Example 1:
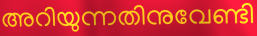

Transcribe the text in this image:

അറിയുന്നതിനുവേണ്ടി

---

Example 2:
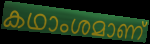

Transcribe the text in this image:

കഥാംശമാണ്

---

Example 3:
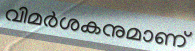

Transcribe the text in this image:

വിമർശകനുമാണ്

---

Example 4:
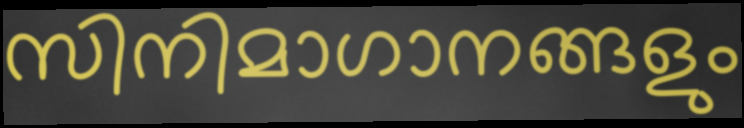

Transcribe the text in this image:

സിനിമാഗാനങ്ങളും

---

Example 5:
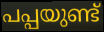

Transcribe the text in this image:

പപ്പയുണ്ട്